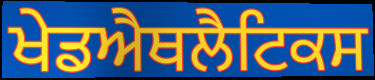
ਖੇਡਐਥਲੈਟਿਕਸ